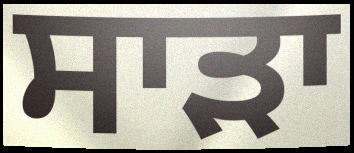
ਸਾੜਾ